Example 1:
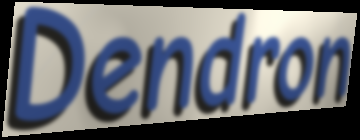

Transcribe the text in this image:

Dendron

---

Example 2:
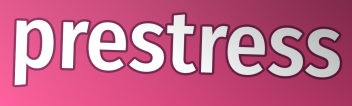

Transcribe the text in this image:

prestress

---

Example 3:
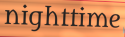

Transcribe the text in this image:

nighttime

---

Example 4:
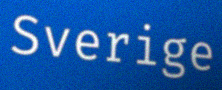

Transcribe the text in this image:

Sverige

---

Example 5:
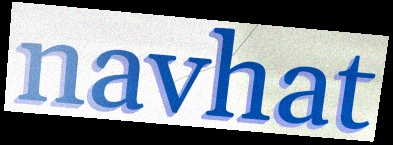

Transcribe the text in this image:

navhat